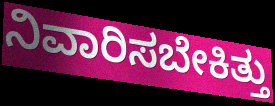
ನಿವಾರಿಸಬೇಕಿತ್ತು